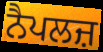
ਨੈਪਲਜ਼